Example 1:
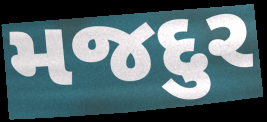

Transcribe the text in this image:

મજદુર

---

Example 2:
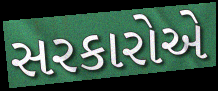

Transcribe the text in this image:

સરકારોએ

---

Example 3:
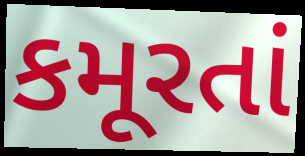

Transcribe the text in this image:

કમૂરતાં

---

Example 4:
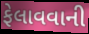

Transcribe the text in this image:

ફેલાવવાની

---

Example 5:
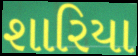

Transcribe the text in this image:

શારિયા